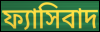
ফ্যাসিবাদ